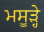
ਮਸੂੜ੍ਹੇ